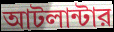
আটলান্টার